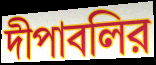
দীপাবলির